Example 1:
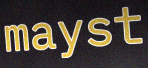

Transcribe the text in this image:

mayst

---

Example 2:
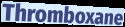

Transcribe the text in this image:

Thromboxane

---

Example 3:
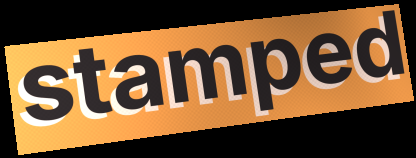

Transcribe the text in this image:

stamped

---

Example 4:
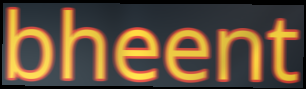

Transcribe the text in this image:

bheent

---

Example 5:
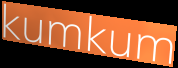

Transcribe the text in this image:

kumkum